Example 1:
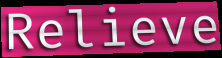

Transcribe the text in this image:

Relieve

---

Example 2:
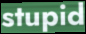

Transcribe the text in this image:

stupid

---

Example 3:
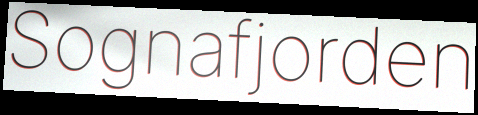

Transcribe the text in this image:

Sognafjorden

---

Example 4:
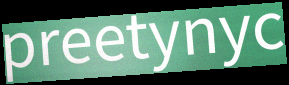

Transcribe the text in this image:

preetynyc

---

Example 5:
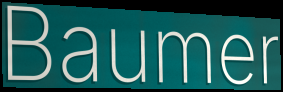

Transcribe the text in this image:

Baumer